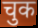
चुक